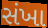
સંખા